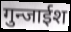
गुन्जाईश